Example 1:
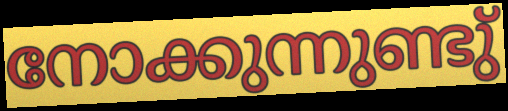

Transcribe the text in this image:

നോക്കുന്നുണ്ടു്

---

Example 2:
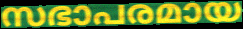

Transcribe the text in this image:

സഭാപരമായ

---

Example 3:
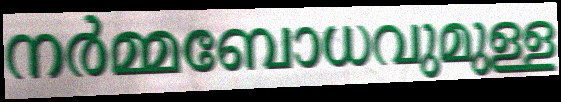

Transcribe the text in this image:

നർമ്മബോധവുമുള്ള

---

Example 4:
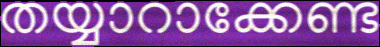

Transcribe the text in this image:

തയ്യാറാക്കേണ്ട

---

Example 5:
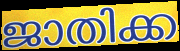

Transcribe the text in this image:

ജാതിക്ക